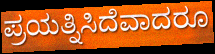
ಪ್ರಯತ್ನಿಸಿದೆವಾದರೂ